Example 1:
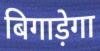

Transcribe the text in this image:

बिगाड़ेगा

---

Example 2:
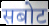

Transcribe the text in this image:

सबोट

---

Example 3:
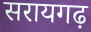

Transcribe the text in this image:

सरायगढ़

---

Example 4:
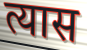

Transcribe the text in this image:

त्यास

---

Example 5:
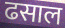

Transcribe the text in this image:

ढसाल